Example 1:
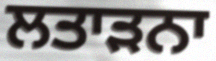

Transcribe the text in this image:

ਲਤਾੜਨਾ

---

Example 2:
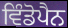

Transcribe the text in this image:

ਵਿੰਡੋਪੈਨ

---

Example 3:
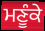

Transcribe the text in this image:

ਮਣੂੰਕੇ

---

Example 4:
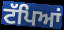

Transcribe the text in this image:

ਟੱਪਿਆਂ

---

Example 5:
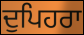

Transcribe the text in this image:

ਦੁਪਿਹਰਾ